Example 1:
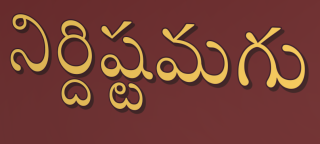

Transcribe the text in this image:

నిర్దిష్టమగు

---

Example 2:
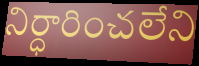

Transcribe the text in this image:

నిర్ధారించలేని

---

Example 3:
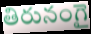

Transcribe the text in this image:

తిరునంగై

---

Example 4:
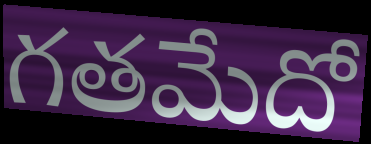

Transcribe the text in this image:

గతమేదో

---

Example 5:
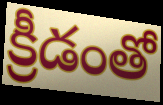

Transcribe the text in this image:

క్రీడంతో